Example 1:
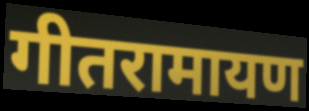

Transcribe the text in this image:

गीतरामायण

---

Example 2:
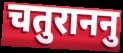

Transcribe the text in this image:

चतुराननु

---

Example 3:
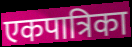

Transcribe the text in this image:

एकपात्रिका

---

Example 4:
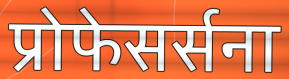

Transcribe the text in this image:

प्रोफेसर्सना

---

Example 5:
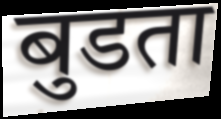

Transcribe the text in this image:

बुडता